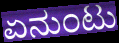
ಏನುಂಟು